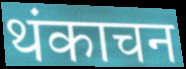
थंकाचन